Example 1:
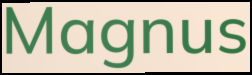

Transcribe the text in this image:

Magnus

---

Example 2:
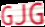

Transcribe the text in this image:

GJG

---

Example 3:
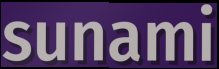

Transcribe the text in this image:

sunami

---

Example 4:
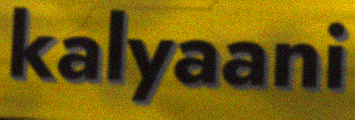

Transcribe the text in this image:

kalyaani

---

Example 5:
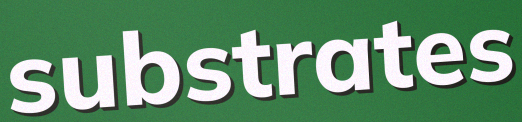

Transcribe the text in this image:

substrates